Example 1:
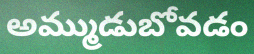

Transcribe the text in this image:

అమ్ముడుబోవడం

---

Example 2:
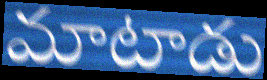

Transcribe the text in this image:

మాటాడు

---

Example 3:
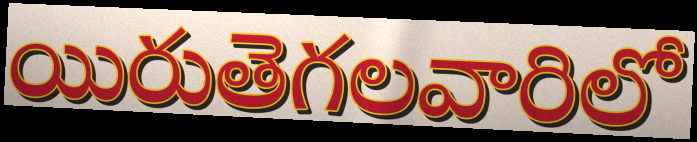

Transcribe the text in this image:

యిరుతెగలవారిలో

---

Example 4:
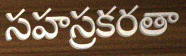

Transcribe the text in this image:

సహస్రకరతా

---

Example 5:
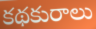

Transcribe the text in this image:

కథకురాలు